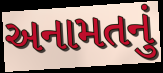
અનામતનું